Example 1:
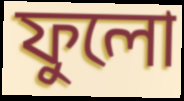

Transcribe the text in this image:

ফুলো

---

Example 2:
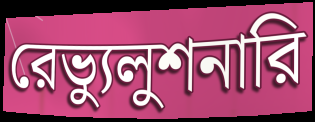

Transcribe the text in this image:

রেভ্যুলুশনারি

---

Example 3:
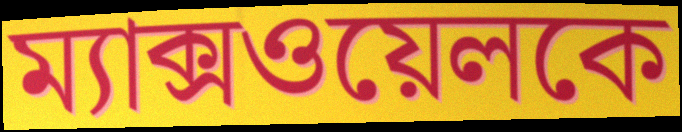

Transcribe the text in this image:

ম্যাক্সওয়েলকে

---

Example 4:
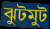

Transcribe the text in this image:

ঝুটমুট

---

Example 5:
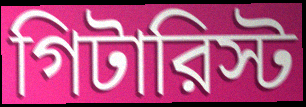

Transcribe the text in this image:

গিটারিস্ট